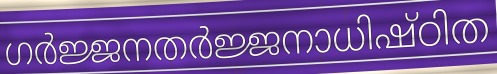
ഗർജ്ജനതർജ്ജനാധിഷ്ഠിത